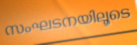
സംഘടനയിലൂടെ